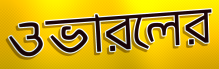
ওভারলের